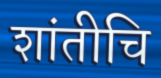
शांतीचि